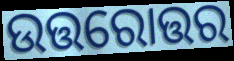
ଉତ୍ତରୋତ୍ତର